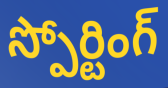
స్పోర్టింగ్